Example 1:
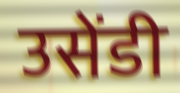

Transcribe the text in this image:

उसेंडी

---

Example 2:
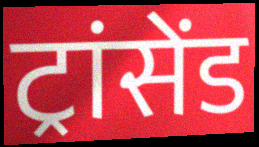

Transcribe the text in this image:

ट्रांसेंड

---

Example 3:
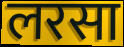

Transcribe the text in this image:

लरसा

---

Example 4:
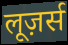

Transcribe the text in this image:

लूज़र्स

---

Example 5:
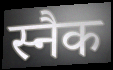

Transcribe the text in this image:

स्नैक